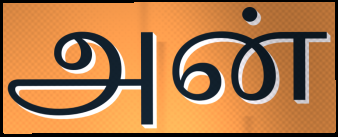
அன்